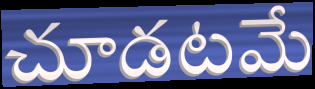
చూడటమే